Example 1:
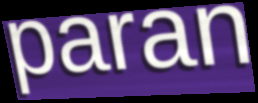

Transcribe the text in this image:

paran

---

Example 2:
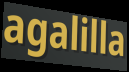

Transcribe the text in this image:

agalilla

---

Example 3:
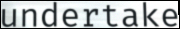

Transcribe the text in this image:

undertake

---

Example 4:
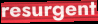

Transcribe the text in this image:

resurgent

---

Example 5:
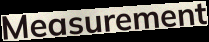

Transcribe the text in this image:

Measurement